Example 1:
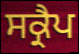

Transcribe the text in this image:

ਸਕ੍ਰੈਪ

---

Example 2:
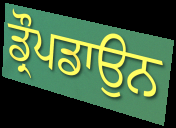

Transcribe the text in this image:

ਡ੍ਰੌਪਡਾਉਨ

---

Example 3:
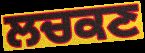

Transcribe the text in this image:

ਲਚਕਣ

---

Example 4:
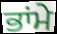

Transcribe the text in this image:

ਭਾਂਮੇ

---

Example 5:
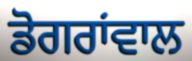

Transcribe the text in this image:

ਡੋਗਰਾਂਵਾਲ